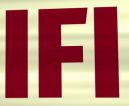
IFI